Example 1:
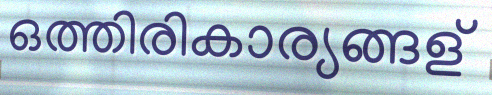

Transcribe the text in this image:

ഒത്തിരികാര്യങ്ങള്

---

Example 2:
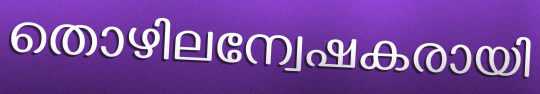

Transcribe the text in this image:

തൊഴിലന്വേഷകരായി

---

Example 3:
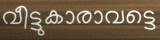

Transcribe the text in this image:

വീട്ടുകാരാവട്ടെ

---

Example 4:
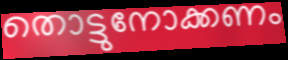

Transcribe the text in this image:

തൊട്ടുനോക്കണം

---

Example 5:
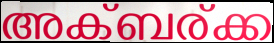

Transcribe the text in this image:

അക്ബര്ക്ക